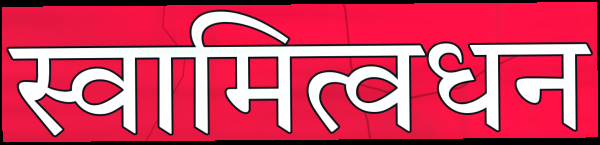
स्वामित्वधन